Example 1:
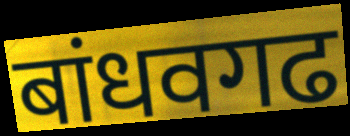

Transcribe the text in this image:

बांधवगढ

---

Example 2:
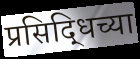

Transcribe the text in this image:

प्रसिद्धिच्या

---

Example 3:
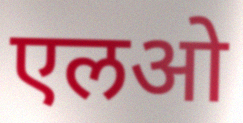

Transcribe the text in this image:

एलओ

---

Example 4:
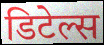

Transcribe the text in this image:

डिटेल्स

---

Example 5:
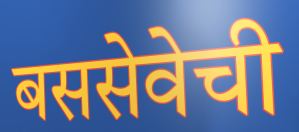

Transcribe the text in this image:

बससेवेची